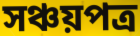
সঞ্চয়পত্র